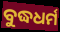
ବୁଦ୍ଧଧର୍ମ